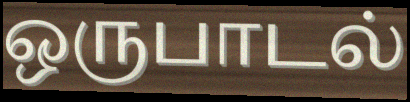
ஒருபாடல்